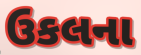
ઉકલના